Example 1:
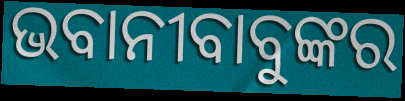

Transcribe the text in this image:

ଭବାନୀବାବୁଙ୍କର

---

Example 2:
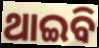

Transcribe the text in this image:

ଥାଇବି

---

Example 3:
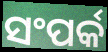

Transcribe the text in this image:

ସଂପର୍କ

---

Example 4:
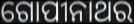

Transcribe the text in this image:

ଗୋପୀନାଥର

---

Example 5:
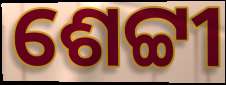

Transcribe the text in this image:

ଶେଟ୍ଟୀ